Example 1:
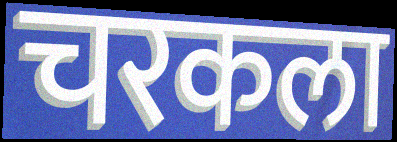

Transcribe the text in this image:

चरकला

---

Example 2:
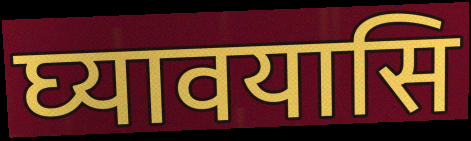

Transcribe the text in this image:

घ्यावयासि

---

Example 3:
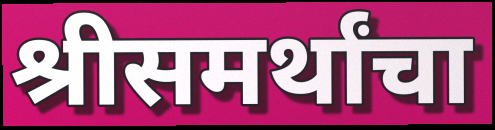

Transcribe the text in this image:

श्रीसमर्थांचा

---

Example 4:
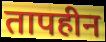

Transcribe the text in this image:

तापहीन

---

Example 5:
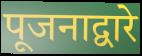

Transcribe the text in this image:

पूजनाद्वारे